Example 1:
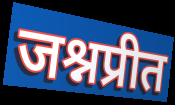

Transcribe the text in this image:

जश्नप्रीत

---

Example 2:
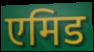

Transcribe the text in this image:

एमिड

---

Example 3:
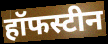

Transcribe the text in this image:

हॉफस्टीन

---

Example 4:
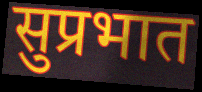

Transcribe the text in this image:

सुप्रभात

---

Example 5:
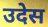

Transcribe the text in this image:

उदेस